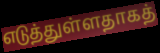
எடுத்துள்ளதாகத்